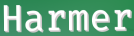
Harmer